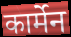
कार्मेन